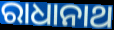
ରାଧାନାଥ